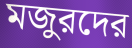
মজুরদের